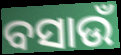
ବସାଉଁ